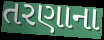
તરણાના